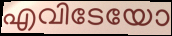
എവിടേയോ